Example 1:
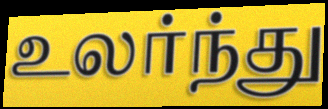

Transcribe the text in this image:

உலர்ந்து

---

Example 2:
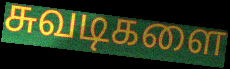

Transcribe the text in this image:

சுவடிகளை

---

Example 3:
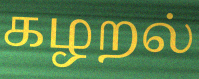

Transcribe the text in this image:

கழறல்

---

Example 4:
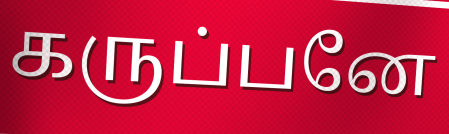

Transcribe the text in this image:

கருப்பனே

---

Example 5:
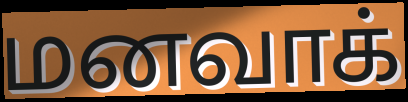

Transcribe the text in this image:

மனவாக்